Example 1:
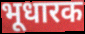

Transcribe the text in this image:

भूधारक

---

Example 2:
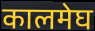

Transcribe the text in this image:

कालमेघ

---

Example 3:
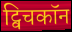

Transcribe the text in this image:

ट्विचकॉन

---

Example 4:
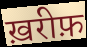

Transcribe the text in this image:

ख़रीफ़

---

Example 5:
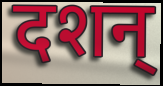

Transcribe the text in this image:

दशन्